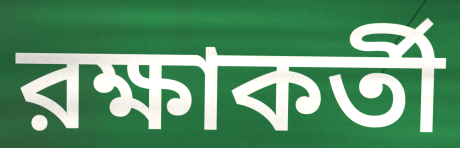
রক্ষাকর্তী